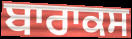
ਬਾਰਾਕਸ